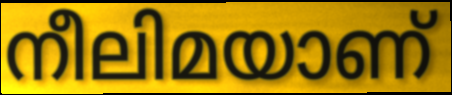
നീലിമയാണ്